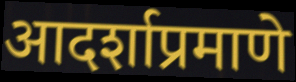
आदर्शाप्रमाणे